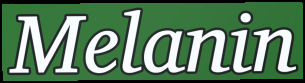
Melanin